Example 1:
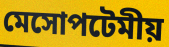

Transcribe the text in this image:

মেসোপটেমীয়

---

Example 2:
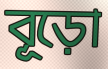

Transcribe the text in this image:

বূড়ো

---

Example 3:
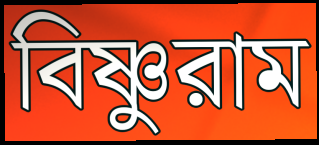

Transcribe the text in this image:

বিষ্ণুরাম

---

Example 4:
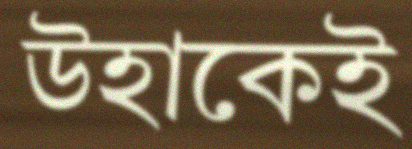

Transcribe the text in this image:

উহাকেই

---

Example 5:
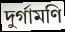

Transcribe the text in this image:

দুর্গামণি